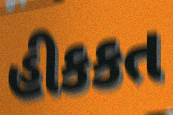
હીકકત